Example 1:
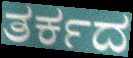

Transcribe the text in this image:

ತರ್ಕದ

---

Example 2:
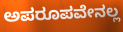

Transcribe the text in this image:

ಅಪರೂಪವೇನಲ್ಲ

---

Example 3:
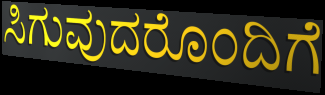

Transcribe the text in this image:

ಸಿಗುವುದರೊಂದಿಗೆ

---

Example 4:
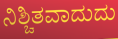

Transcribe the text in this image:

ನಿಶ್ಚಿತವಾದುದು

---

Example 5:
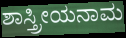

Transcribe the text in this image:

ಶಾಸ್ತ್ರೀಯನಾಮ